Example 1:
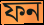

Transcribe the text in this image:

ফন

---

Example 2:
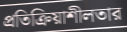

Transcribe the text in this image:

প্রতিক্রিয়াশীলতার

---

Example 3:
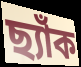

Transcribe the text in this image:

ছ্যাঁক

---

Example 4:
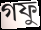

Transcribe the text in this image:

গফু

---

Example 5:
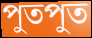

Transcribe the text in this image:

পুতপুত